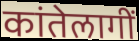
कांतेलागीं